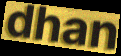
dhan